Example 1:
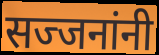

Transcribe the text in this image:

सज्जनांनी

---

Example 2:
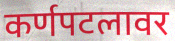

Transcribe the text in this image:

कर्णपटलावर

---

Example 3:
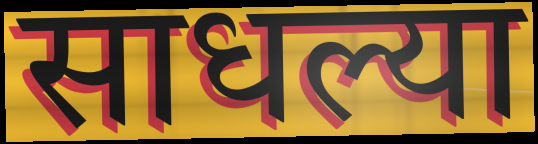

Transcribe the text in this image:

साधल्या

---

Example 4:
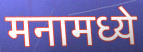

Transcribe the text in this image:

मनामध्ये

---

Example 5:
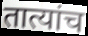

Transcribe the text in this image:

तात्यांच